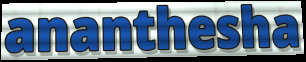
ananthesha